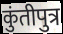
कुंतीपुत्र